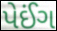
પેઈંગ